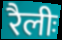
रैलीः